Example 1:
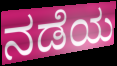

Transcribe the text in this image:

ನಡೆಯ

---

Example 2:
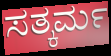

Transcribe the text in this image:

ಸತ್ಕರ್ಮ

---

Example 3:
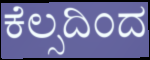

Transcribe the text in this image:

ಕೆಲ್ಸದಿಂದ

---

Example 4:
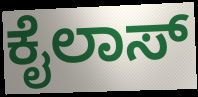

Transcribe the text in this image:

ಕೈಲಾಸ್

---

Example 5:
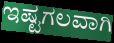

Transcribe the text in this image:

ಇಷ್ಟಗಲವಾಗಿ